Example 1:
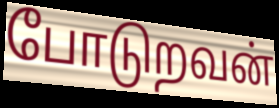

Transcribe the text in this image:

போடுறவன்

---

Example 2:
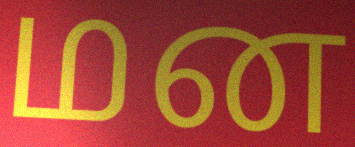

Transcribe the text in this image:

மன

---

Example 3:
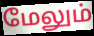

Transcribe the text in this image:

மேலும்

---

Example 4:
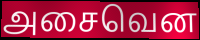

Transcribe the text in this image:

அசைவென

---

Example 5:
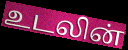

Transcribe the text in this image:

உடலின்